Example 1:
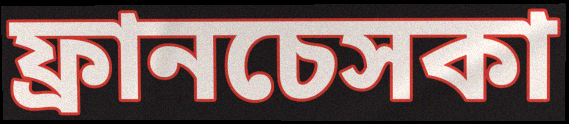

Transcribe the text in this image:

ফ্রানচেসকা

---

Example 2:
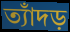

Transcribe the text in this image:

ত্যাঁদড়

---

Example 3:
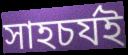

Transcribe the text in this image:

সাহচর্যই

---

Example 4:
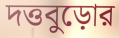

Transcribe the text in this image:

দত্তবুড়োর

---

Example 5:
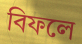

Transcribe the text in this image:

বিফলে